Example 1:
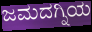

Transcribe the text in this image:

ಜಮದಗ್ನಿಯ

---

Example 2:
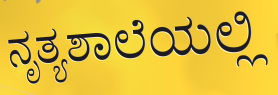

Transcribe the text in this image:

ನೃತ್ಯಶಾಲೆಯಲ್ಲಿ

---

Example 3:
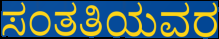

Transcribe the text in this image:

ಸಂತತಿಯವರ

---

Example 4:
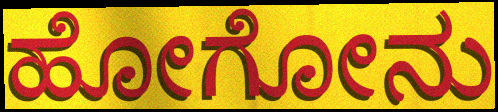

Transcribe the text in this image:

ಹೋಗೋನು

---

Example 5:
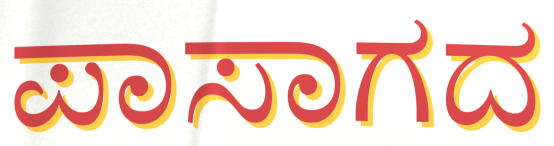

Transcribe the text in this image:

ಪಾಸಾಗದ